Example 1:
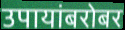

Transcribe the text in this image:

उपायांबरोबर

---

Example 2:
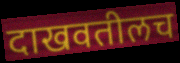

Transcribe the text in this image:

दाखवतीलच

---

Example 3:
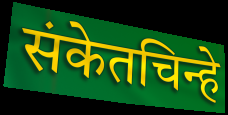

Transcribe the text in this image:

संकेतचिन्हे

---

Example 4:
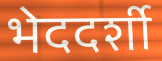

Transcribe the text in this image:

भेददर्शी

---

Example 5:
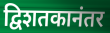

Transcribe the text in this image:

द्विशतकानंतर